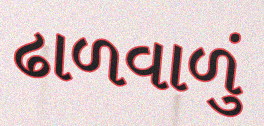
ઢાળવાળું